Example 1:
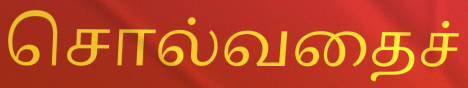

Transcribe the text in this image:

சொல்வதைச்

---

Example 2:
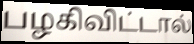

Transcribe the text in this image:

பழகிவிட்டால்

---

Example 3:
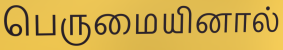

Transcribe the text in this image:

பெருமையினால்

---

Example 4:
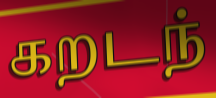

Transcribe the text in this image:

கறடந்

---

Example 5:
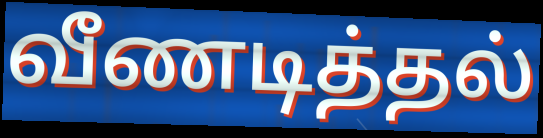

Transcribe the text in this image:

வீணடித்தல்